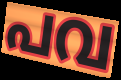
പവ